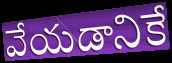
వేయడానికే